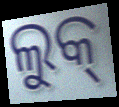
ଲୁକ୍